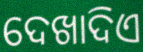
ଦେଖାଦିଏ